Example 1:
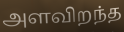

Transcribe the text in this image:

அளவிறந்த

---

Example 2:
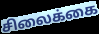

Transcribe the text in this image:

சிலைக்கை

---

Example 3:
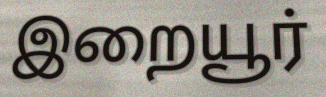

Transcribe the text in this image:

இறையூர்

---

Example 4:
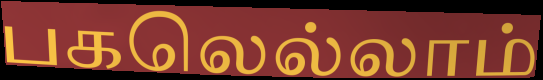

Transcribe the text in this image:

பகலெல்லாம்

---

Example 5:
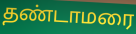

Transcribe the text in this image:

தண்டாமரை